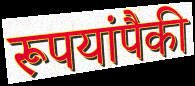
रूपयांपैकी